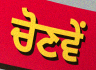
ਚੋਣਵੇਂ